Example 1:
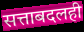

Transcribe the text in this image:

सत्ताबदलही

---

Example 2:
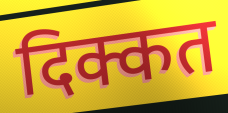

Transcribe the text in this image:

दिक्कत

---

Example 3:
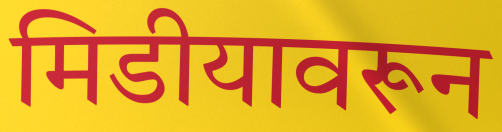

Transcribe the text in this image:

मिडीयावरून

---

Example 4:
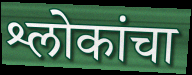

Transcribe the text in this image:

श्लोकांचा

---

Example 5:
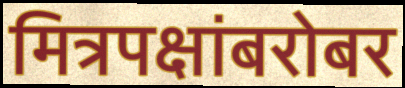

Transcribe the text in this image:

मित्रपक्षांबरोबर